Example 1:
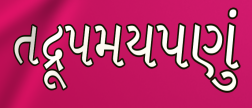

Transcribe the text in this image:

તદ્રૂપમયપણું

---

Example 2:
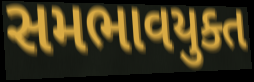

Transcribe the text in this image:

સમભાવયુક્ત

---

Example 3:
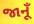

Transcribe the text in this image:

જાનૂઁ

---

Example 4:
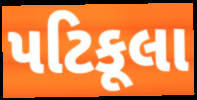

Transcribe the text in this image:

પટિકૂલા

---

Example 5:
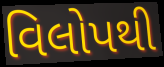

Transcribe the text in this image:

વિલોપથી